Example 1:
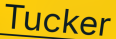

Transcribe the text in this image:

Tucker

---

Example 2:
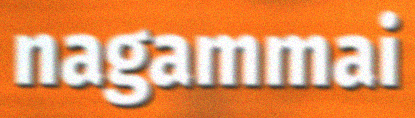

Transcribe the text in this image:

nagammai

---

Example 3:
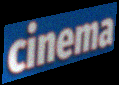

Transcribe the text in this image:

cinema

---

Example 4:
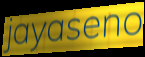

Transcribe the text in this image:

jayaseno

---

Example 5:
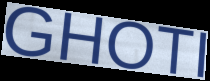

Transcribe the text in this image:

GHOTI